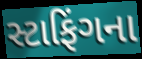
સ્ટાફિંગના